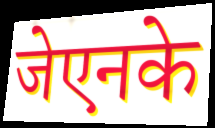
जेएनके